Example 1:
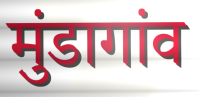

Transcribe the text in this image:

मुंडागांव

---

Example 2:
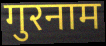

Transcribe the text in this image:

गुरनाम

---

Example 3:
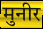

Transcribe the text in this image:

मुनीर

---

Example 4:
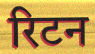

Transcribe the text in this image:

रिटन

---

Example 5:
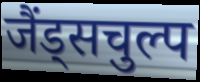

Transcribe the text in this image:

जैंड्सचुल्प